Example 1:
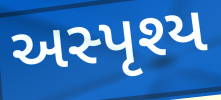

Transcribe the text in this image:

અસ્પૃશ્ય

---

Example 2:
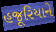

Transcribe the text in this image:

હજૂરિયાને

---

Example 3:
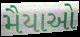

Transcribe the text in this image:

મૈયાઓ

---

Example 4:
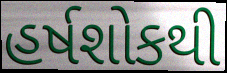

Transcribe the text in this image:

હર્ષશોકથી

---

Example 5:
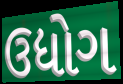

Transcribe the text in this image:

ઉદ્યોગ